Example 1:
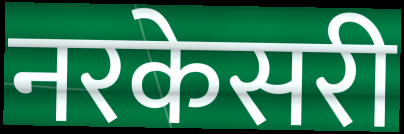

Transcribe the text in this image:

नरकेसरी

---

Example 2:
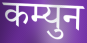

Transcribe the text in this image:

कम्युन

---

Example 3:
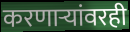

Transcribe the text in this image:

करणाऱ्यांवरही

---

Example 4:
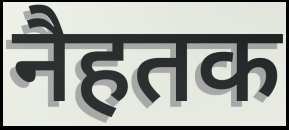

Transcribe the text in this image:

नैहतक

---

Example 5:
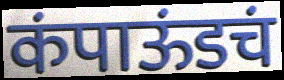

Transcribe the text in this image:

कंपाऊंडचं